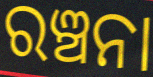
ରଞ୍ଚନା